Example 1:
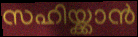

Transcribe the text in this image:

സഹിയ്ക്കാൻ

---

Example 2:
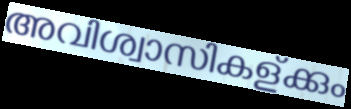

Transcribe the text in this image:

അവിശ്വാസികള്ക്കും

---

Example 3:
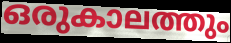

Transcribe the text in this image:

ഒരുകാലത്തും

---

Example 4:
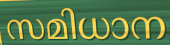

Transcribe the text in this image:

സമിധാന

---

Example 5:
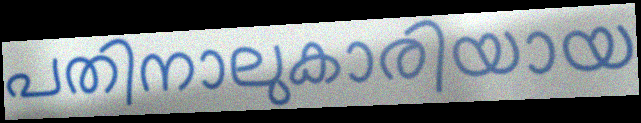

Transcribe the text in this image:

പതിനാലുകാരിയായ